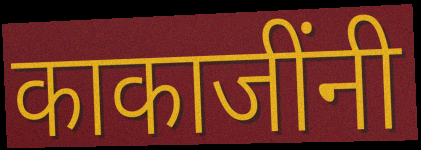
काकाजींनी